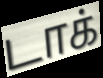
டாக்